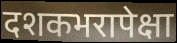
दशकभरापेक्षा